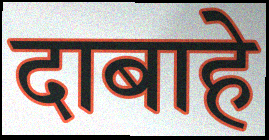
दाबाहे